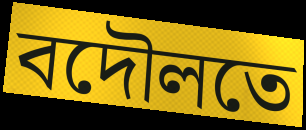
বদৌলতে